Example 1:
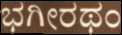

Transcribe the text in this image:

ಭಗೀರಥಂ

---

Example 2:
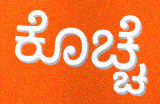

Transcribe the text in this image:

ಕೊಚ್ಚೆ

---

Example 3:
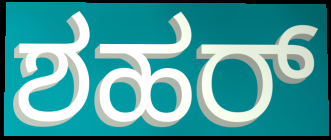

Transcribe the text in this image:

ಶಹರ್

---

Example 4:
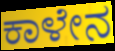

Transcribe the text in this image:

ಕಾಳೇನ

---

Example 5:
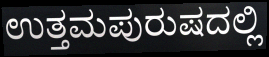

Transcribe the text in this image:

ಉತ್ತಮಪುರುಷದಲ್ಲಿ